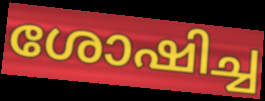
ശോഷിച്ച